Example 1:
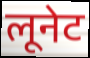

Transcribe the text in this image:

लूनेट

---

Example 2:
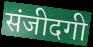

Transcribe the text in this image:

संजीदगी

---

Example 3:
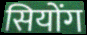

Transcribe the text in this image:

सियोंग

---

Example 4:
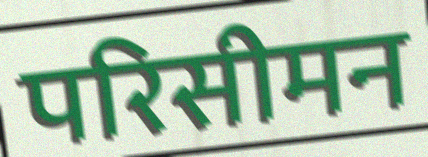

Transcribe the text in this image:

परिसीमन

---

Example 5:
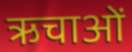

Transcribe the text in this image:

ऋचाओं